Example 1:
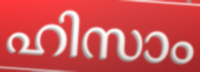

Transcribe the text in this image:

ഹിസാം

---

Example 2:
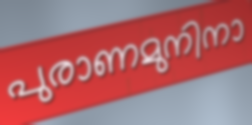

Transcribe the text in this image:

പുരാണമുനിനാ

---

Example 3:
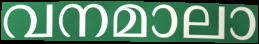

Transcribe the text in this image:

വനമാലാ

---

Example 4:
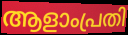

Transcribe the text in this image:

ആളാംപ്രതി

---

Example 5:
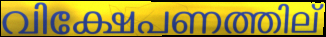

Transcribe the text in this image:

വിക്ഷേപണത്തില്